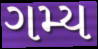
ગમ્ય